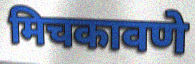
मिचकावणे